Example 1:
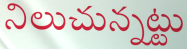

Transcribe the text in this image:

నిలుచున్నట్టు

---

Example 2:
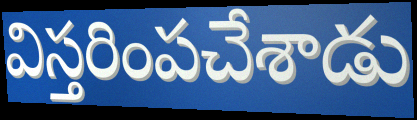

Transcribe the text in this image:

విస్తరింపచేశాడు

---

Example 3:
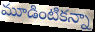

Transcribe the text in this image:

మూడింటికన్నా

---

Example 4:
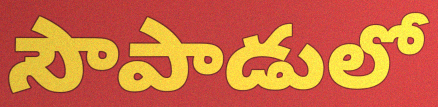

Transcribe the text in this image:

సౌపాడులో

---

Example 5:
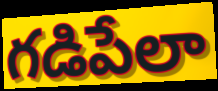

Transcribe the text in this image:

గడిపేలా